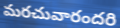
మరచువారందరి